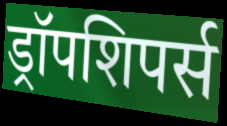
ड्रॉपशिपर्स